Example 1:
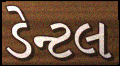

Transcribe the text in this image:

ડેન્ટલ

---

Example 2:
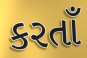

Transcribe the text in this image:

કરતાઁ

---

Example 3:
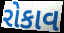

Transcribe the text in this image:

રોકાવ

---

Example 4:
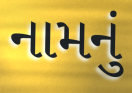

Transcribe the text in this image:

નામનું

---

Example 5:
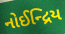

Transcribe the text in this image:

નોઈન્દ્રિય